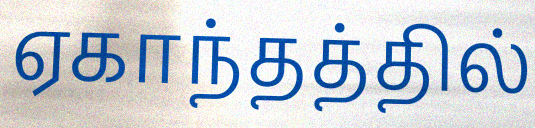
ஏகாந்தத்தில்